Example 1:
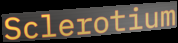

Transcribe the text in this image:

Sclerotium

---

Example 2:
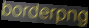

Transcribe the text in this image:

borderpng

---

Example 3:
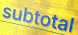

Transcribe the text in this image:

subtotal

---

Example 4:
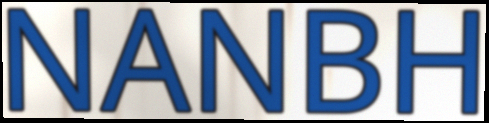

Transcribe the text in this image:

NANBH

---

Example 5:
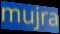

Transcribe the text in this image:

mujra